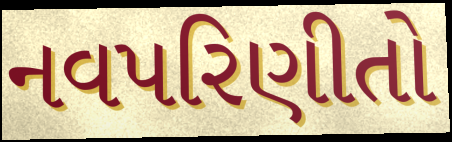
નવપરિણીતો